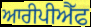
ਆਰੀਪੀਐੱਫ